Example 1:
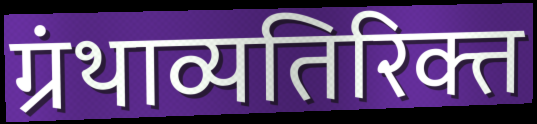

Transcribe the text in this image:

ग्रंथाव्यतिरिक्त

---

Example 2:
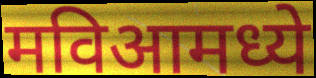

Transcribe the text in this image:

मविआमध्ये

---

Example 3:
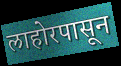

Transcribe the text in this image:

लाहोरपासून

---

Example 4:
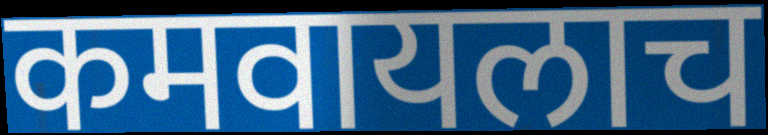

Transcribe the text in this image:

कमवायलाच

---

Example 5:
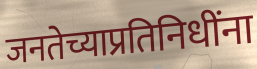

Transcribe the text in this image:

जनतेच्याप्रतिनिधींना